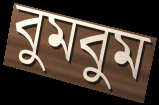
বুমবুম